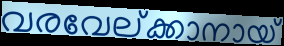
വരവേല്ക്കാനായ്